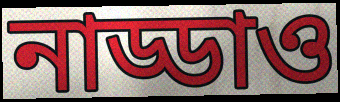
নাড্ডাও